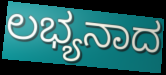
ಲಭ್ಯನಾದ